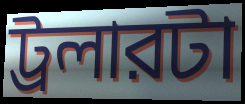
ট্রলারটা